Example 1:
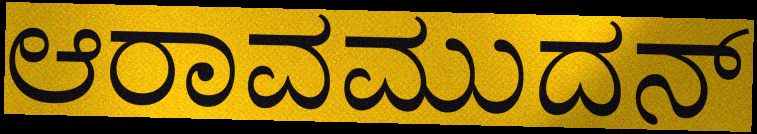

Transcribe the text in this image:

ಆರಾವಮುದನ್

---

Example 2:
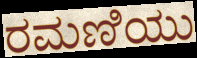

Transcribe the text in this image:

ರಮಣಿಯು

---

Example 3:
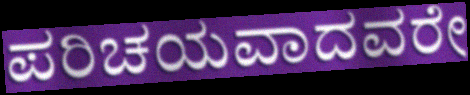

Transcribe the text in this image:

ಪರಿಚಯವಾದವರೇ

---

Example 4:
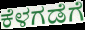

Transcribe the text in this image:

ಕೆಳಗಡೆಗೆ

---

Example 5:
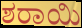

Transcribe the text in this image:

ಶರಾಯಿ